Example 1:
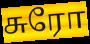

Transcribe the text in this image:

சுரோ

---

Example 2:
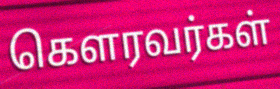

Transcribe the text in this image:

கௌரவர்கள்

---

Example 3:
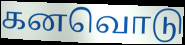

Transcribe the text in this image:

கனவொடு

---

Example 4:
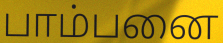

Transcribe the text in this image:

பாம்பனை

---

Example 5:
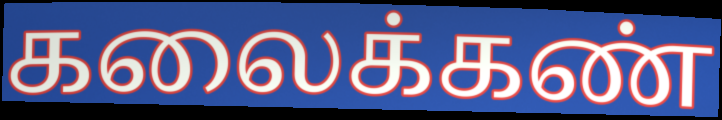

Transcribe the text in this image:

கலைக்கண்